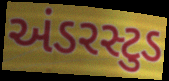
અંડરસ્ટુડ